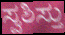
ಸ್ವಶಿಸ್ತು